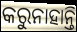
କରୁନାହାନ୍ତି